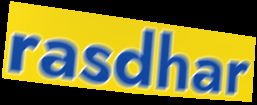
rasdhar